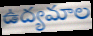
ఉద్యమాల